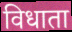
विधाता